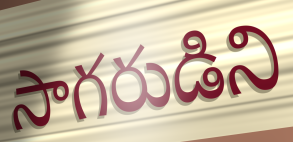
సాగరుడిని